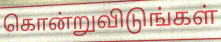
கொன்றுவிடுங்கள்